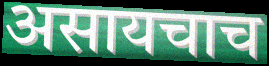
असायचाच